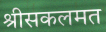
श्रीसकलमत